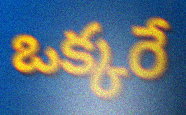
ఒక్కరే